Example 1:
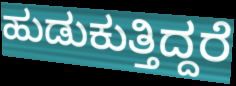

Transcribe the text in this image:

ಹುಡುಕುತ್ತಿದ್ದರೆ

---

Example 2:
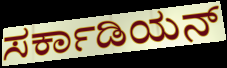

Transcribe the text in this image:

ಸರ್ಕಾಡಿಯನ್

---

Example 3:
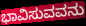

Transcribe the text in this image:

ಭಾವಿಸುವವನು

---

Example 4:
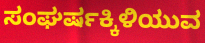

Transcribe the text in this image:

ಸಂಘರ್ಷಕ್ಕಿಳಿಯುವ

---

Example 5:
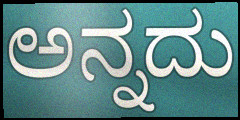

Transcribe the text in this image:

ಅನ್ನದು